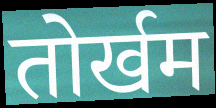
तोर्खम